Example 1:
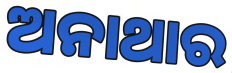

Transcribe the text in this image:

ଅନାଥାର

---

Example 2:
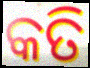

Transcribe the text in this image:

କତି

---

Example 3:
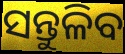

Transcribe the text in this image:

ସନ୍ତୁଳିବ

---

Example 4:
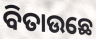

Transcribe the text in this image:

ବିତାଉଛେ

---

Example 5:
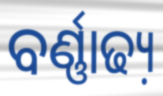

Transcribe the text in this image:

ବର୍ଣ୍ଣାଢ୍ୟ଼